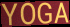
YOGA